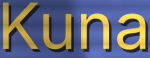
Kuna